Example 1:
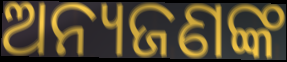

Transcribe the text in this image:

ଅନ୍ୟଜଣଙ୍କ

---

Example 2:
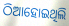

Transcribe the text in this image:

ଠିଆହୋଇଥିଲି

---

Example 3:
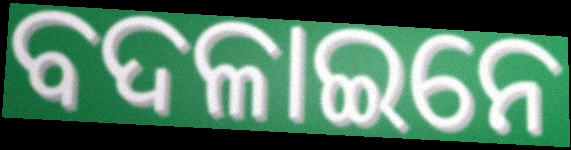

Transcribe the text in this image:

ବଦଳାଇନେ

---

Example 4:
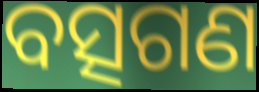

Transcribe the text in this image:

ବତ୍ସଗଣ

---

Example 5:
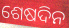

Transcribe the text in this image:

ଶେଷଦିନ